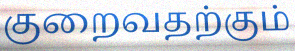
குறைவதற்கும்